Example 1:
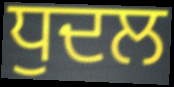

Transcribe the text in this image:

ਧੁਦਲ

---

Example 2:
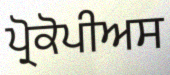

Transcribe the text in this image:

ਪ੍ਰੋਕੋਪੀਅਸ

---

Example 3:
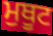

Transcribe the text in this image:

ਮੁਥੂਟ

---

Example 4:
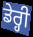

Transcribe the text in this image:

ਡੇਰ੍ਹੀ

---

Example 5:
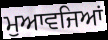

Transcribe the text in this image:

ਮੁਆਵਜਿਆਂ